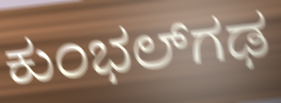
ಕುಂಭಲ್‌ಗಢ